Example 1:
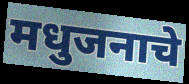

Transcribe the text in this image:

मधुजनाचे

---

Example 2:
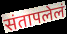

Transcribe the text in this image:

संतापलेलं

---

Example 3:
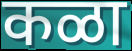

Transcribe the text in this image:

कळा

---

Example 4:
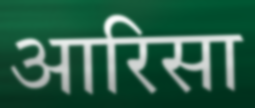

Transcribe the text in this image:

आरिसा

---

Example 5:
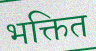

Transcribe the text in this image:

भक्तित